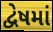
દ્વેષમાં